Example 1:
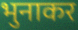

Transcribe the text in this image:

भुनाकर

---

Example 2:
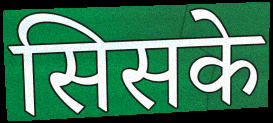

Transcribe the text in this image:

सिसके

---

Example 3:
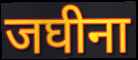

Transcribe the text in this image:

जघीना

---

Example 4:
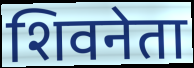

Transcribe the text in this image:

शिवनेता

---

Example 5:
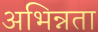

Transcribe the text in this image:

अभिन्नता